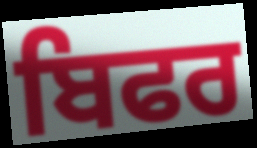
ਬਿਫਰ